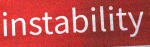
instability